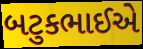
બટુકભાઈએ